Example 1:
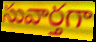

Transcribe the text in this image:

సువార్తగా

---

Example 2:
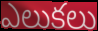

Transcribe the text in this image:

ఎలుకలు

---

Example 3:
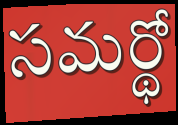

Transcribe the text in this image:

సమర్థో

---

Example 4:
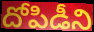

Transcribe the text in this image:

దోపిడీని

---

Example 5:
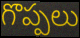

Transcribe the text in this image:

గొప్పలు